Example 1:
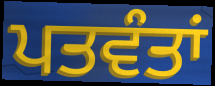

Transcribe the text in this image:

ਪਤਵੰਤਾਂ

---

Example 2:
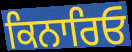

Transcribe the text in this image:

ਕਿਨਾਰਿਓ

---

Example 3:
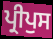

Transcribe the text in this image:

ਪ੍ਰੀਪੁਸ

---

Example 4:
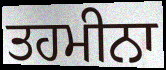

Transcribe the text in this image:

ਤਹਮੀਨਾ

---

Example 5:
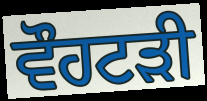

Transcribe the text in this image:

ਵੌਹਟੜੀ